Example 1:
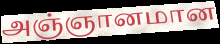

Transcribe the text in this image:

அஞ்ஞானமான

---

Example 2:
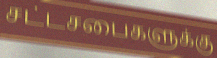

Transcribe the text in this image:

சட்டசபைகளுக்கு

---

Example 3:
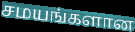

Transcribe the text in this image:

சமயங்களான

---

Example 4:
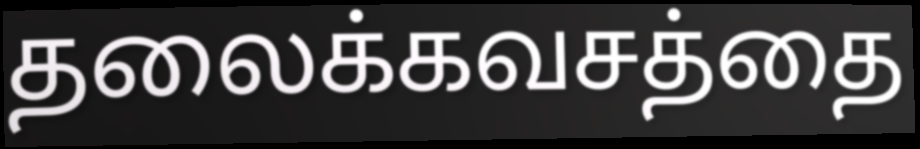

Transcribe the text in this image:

தலைக்கவசத்தை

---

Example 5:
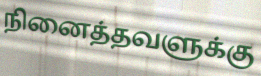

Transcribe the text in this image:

நினைத்தவளுக்கு